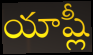
యాష్లీ